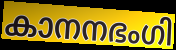
കാനനഭംഗി